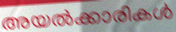
അയൽക്കാരികൾ